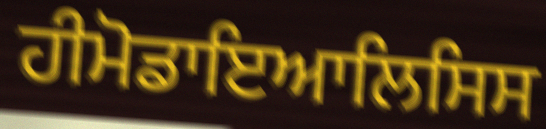
ਹੀਮੋਡਾਇਆਲਿਸਿਸ